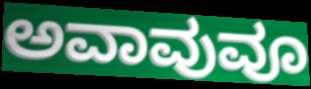
ಅವಾವುವೂ